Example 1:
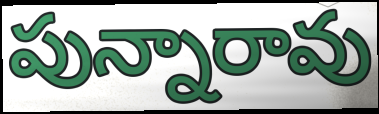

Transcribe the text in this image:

పున్నారావు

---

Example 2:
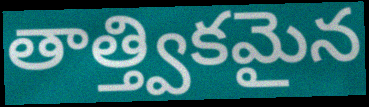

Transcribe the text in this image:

తాత్త్వికమైన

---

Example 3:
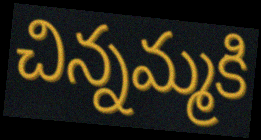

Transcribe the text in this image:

చిన్నమ్మకి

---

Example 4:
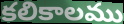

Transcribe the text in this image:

కలికాలము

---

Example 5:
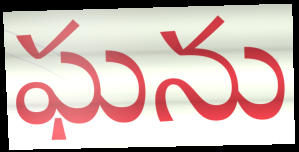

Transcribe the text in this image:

ఘను